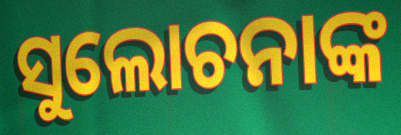
ସୁଲୋଚନାଙ୍କ